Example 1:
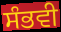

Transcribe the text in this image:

ਸੰਭਵੀ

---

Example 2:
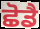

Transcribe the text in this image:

ਛੋਡੈ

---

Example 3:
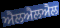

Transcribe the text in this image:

ਐਲਐਲਐਲ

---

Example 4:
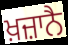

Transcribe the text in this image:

ਖ਼ਜ਼ਾਨੈ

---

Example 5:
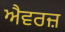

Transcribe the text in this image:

ਐਵਰਜ਼